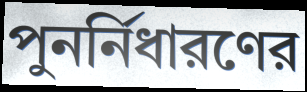
পুনর্নিধারণের